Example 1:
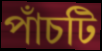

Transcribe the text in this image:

পাঁচটি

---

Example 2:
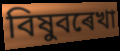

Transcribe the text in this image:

বিষুবৰেখা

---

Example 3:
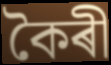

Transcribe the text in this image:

কৈৰী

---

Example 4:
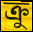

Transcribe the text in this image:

ক্ৰু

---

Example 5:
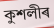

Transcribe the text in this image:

কুশলীৰ